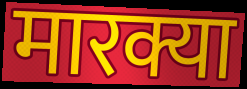
मारक्या